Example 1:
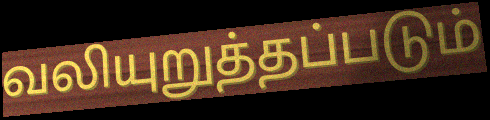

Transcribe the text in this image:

வலியுறுத்தப்படும்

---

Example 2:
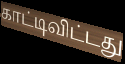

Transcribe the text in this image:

காட்டிவிட்டது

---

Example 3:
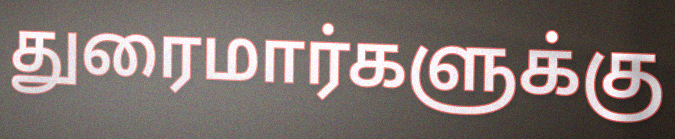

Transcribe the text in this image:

துரைமார்களுக்கு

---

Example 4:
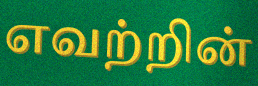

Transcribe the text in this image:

எவற்றின்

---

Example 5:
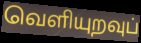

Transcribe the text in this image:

வெளியுறவுப்